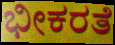
ಭೀಕರತೆ